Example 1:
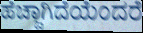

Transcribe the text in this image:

ಹೆಚ್ಚಾಗಿದೆಯೆಂದರೆ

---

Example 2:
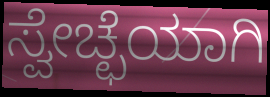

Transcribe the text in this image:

ಸ್ವೇಚ್ಛೆಯಾಗಿ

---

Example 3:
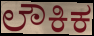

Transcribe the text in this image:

ಲೌಕಿಕ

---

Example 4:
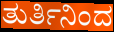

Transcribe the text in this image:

ತುರ್ತಿನಿಂದ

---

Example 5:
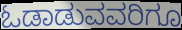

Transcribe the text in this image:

ಓಡಾಡುವವರಿಗೂ